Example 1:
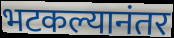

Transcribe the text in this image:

भटकल्यानंतर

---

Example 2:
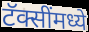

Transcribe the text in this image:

टॅक्सींमध्ये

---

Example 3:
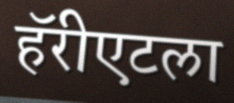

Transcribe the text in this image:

हॅरीएटला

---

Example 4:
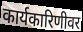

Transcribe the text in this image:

कार्यकारिणीवर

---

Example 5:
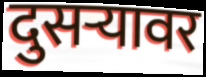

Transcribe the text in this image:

दुसऱ्यावर